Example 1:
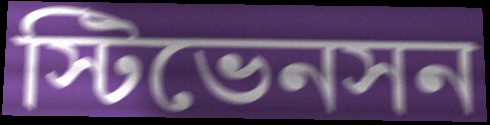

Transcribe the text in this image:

স্টিভেনসন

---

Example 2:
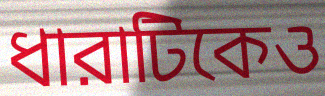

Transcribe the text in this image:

ধারাটিকেও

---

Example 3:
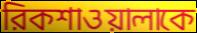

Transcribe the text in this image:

রিকশাওয়ালাকে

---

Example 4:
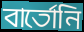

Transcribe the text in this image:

বার্তোনি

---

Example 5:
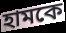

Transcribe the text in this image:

হামকে